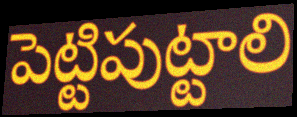
పెట్టిపుట్టాలి